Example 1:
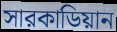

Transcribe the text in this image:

সারকাডিয়ান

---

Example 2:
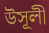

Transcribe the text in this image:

উসূলী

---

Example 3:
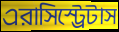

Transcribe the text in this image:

এরাসিস্ট্রেটাস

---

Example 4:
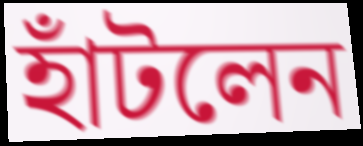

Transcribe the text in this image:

হাঁটলেন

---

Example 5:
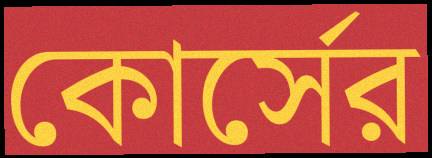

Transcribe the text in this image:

কোর্সের